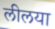
लीलया